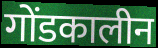
गोंडकालीन